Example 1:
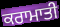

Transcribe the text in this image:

ਕਰਾਮਾਤੀ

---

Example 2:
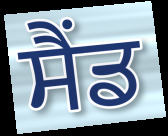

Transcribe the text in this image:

ਸੈਂਡ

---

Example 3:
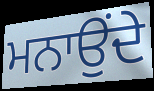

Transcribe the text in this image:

ਮਨਾਉਂਦੇ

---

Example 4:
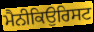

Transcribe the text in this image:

ਮੈਨੀਕਿਉਰਿਸਟ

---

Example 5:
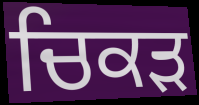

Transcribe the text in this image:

ਚਿਕੜ